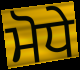
ਮੋਧੇ